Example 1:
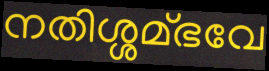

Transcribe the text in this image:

നതിശ്ശമ്ഭവേ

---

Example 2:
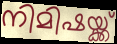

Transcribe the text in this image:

നിമിഷയ്ക്ക്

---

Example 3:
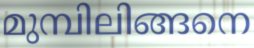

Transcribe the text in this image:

മുമ്പിലിങ്ങനെ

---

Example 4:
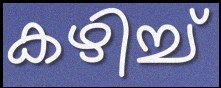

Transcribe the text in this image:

കഴിച്ച്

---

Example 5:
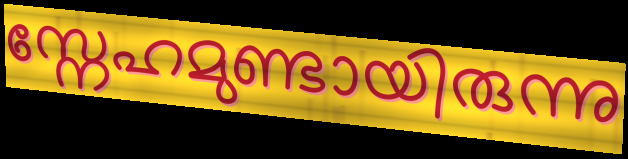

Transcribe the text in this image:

സ്നേഹമുണ്ടായിരുന്നു